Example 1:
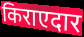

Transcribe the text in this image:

किराएदार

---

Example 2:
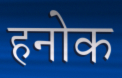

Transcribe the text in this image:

हनोक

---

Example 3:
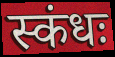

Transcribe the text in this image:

स्कंधः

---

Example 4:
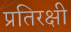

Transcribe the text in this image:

प्रतिरक्षी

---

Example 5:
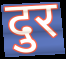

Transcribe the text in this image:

दुर